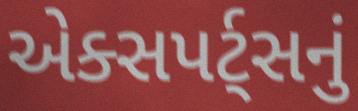
એક્સપર્ટ્સનું